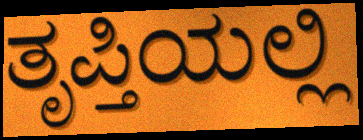
ತೃಪ್ತಿಯಲ್ಲಿ